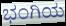
ಭಂಗಿಯ